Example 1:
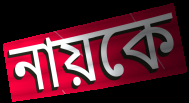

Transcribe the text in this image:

নায়কে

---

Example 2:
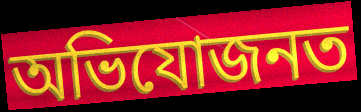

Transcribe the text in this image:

অভিযোজনত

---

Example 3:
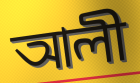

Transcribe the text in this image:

আলী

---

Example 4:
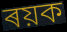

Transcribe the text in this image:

ৰয়ক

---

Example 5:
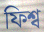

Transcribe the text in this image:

ফিশ্ব